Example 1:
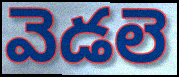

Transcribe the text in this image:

వెడలె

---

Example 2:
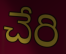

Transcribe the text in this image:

చేరి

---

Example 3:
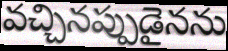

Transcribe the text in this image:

వచ్చినప్పుడైనను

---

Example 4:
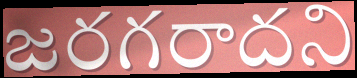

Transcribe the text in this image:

జరగరాదని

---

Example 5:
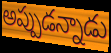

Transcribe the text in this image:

అప్పుడన్నాడు